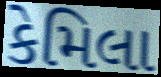
કેમિલા